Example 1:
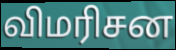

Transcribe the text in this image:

விமரிசன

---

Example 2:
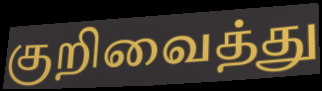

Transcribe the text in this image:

குறிவைத்து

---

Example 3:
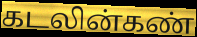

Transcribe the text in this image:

கடலின்கண்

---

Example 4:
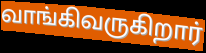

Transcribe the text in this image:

வாங்கிவருகிறார்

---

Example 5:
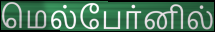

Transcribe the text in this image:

மெல்பேர்னில்